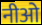
नीओ